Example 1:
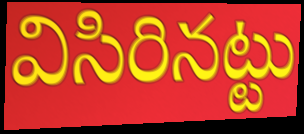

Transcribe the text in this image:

విసిరినట్టు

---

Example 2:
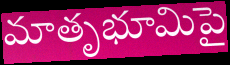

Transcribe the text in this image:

మాతృభూమిపై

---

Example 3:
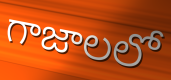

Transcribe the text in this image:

గాజాలలో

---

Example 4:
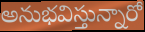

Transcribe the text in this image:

అనుభవిస్తున్నారో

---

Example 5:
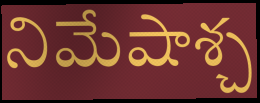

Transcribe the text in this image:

నిమేషాశ్చ